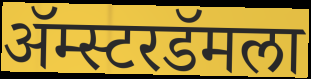
ॲम्स्टरडॅमला